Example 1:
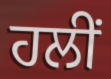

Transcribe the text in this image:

ਹਲੀਂ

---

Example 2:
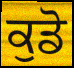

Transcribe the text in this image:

ਕੁਡੋ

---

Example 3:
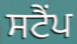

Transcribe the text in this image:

ਸਟੈਂਪ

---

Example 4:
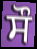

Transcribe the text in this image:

ਸੌ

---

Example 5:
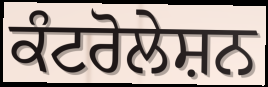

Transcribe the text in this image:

ਕੰਟਰੋਲੇਸ਼ਨ